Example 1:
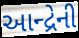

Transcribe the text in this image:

આન્દ્રેની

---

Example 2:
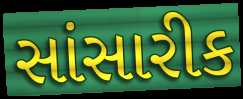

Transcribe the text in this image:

સાંસારીક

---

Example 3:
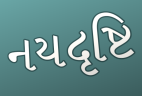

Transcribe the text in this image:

નયદૃષ્ટિ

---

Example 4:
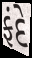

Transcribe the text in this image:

ફંદે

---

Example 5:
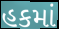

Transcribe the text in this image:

હકમાં